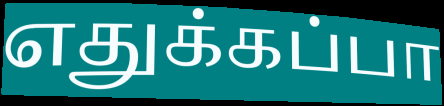
எதுக்கப்பா